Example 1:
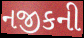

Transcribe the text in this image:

નજીકની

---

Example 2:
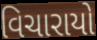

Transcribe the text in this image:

વિચારાયો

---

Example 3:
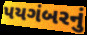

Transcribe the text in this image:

પયગંબરનું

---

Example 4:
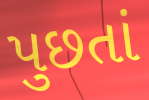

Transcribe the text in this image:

પુછતાં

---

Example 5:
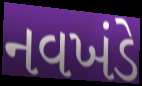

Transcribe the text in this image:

નવખંડે